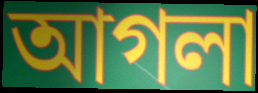
আগলা